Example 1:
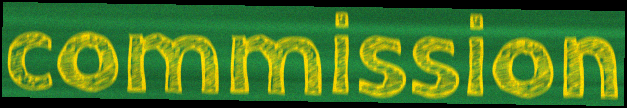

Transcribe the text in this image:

commission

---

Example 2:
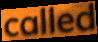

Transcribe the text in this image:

called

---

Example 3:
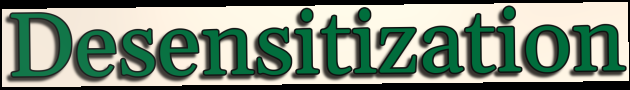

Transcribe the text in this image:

Desensitization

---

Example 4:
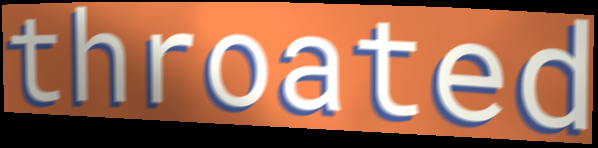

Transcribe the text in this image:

throated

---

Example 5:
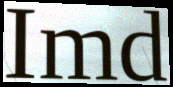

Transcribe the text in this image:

Imd